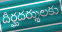
దీర్ఘదర్శులకు